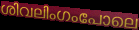
ശിവലിംഗംപോലെ